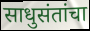
साधुसंतांचा